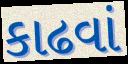
કાઢવાં